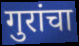
गुरांचा